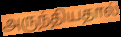
அருந்தியதால்